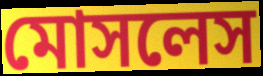
মোসলেস